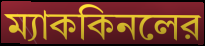
ম্যাককিনলের